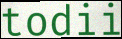
todii